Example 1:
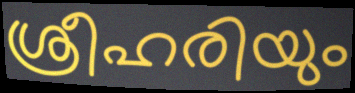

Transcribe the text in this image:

ശ്രീഹരിയും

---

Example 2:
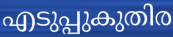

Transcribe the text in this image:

എടുപ്പുകുതിര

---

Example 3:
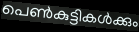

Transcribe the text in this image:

പെൺകുട്ടികൾക്കും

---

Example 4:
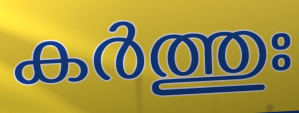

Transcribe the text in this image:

കർത്തുഃ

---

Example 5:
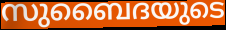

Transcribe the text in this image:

സുബൈദയുടെ